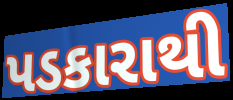
પડકારાથી